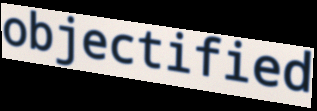
objectified